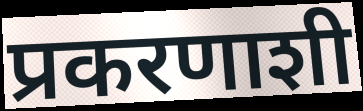
प्रकरणाशी